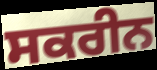
ਸਕਰੀਨ